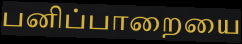
பனிப்பாறையை